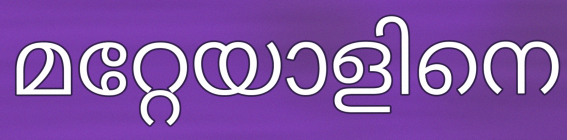
മറ്റേയാളിനെ